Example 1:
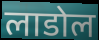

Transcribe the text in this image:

लाडोल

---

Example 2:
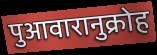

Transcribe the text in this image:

पुआवारानुक्रोह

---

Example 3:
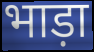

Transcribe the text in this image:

भाड़ा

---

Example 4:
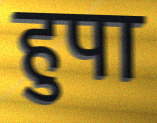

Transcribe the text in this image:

हुपा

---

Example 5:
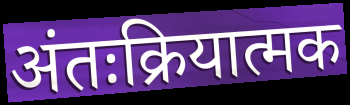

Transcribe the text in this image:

अंतःक्रियात्मक